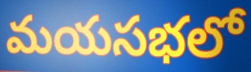
మయసభలో